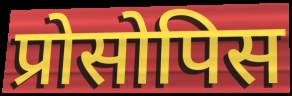
प्रोसोपिस